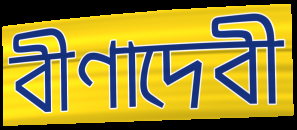
বীণাদেবী